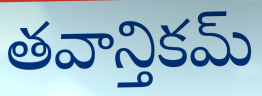
తవాన్తికమ్